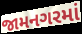
જામનગરમાં